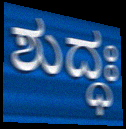
ಶುದ್ಧಃ